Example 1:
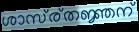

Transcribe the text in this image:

ശാസ്ര്തജ്ഞന്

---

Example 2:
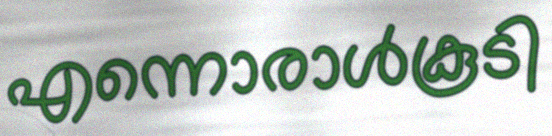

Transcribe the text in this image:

എന്നൊരാൾകൂടി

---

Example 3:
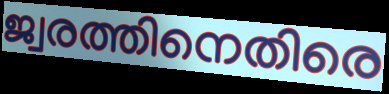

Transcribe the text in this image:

ജ്വരത്തിനെതിരെ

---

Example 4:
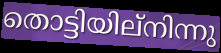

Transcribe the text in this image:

തൊട്ടിയില്നിന്നു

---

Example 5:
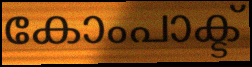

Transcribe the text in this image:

കോംപാക്ട്